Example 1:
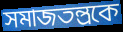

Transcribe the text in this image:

সমাজতন্ত্রকে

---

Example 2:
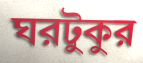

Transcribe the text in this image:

ঘরটুকুর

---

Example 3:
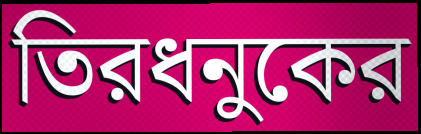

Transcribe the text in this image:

তিরধনুকের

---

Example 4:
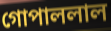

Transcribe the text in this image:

গোপাললাল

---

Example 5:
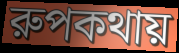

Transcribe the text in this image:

রুপকথায়